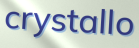
crystallo